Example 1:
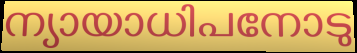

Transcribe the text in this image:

ന്യായാധിപനോടു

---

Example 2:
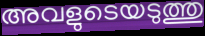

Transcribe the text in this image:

അവളുടെയടുത്തു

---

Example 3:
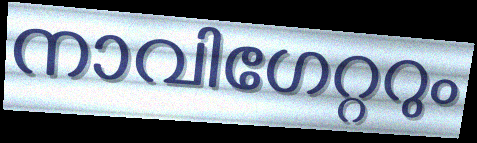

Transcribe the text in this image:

നാവിഗേറ്ററും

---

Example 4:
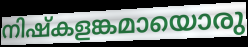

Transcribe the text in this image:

നിഷ്കളങ്കമായൊരു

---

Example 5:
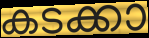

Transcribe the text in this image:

കടക്കാ